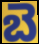
బె